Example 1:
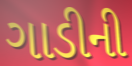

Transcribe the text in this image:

ગાડીની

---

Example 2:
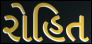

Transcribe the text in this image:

રોહિત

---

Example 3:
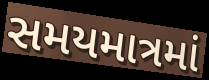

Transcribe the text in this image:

સમયમાત્રમાં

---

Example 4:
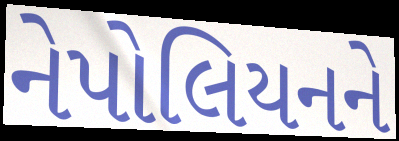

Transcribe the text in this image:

નેપોલિયનને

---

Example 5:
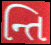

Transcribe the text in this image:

ન્તિ